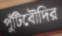
পুঁটিবৌদির